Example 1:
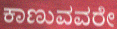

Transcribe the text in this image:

ಕಾಣುವವರೇ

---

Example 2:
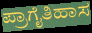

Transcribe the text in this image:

ಪ್ರಾಗೈತಿಹಾಸ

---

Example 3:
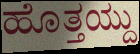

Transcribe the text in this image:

ಹೊತ್ತಯ್ದು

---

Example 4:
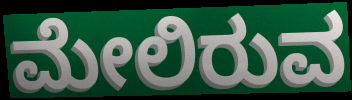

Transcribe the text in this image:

ಮೇಲಿರುವ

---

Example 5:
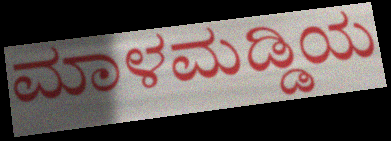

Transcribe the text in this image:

ಮಾಳಮಡ್ಡಿಯ